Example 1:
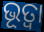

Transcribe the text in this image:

ଭୂତ୍ଵା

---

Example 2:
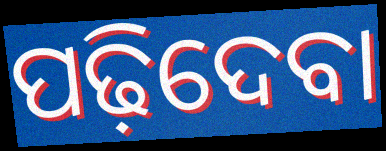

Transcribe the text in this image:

ପଢ଼ିଦେବା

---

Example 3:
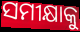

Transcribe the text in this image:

ସମୀକ୍ଷାକୁ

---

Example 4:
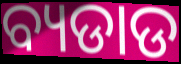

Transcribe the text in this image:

ବ୍ୟଡାଡ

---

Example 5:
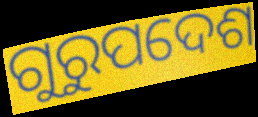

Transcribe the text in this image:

ଗୁରୁପଦେଶ